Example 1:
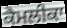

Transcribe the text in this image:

ਕੈਮਲੀਕਾ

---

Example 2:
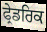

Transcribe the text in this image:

ਫ੍ਰੇਡਰਿਕ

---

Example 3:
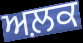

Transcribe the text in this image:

ਅਲ਼ਕ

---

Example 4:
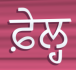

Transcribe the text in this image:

ਫ਼ੇਲ੍ਹ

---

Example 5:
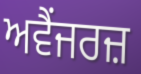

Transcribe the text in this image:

ਅਵੈਂਜਰਜ਼